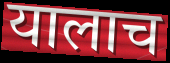
यालाच